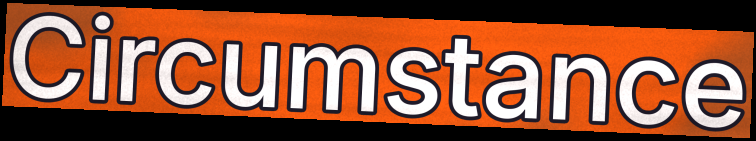
Circumstance